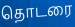
தொடரை